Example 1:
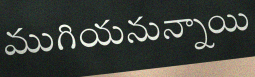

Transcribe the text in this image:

ముగియనున్నాయి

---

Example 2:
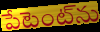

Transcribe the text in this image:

పేటెంట్‌ను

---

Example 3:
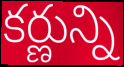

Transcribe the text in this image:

కర్ణున్ని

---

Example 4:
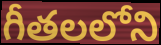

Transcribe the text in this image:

గీతలలోని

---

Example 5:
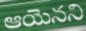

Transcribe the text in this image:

ఆయెనని